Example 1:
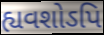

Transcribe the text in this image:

હ્યવશોઽપિ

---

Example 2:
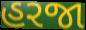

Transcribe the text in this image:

હરજા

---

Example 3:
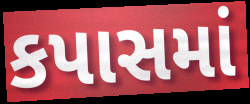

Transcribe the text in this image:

કપાસમાં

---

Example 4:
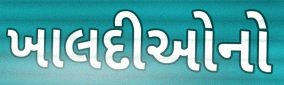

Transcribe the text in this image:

ખાલદીઓનો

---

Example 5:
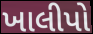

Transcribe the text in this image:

ખાલીપો